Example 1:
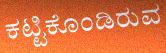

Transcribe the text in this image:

ಕಟ್ಟಿಕೊಂಡಿರುವ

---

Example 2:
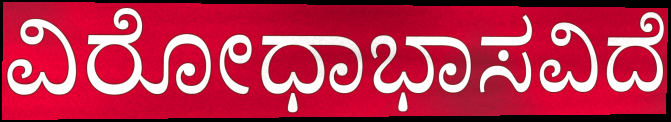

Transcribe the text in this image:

ವಿರೋಧಾಭಾಸವಿದೆ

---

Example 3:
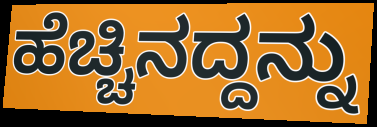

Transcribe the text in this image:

ಹೆಚ್ಚಿನದ್ದನ್ನು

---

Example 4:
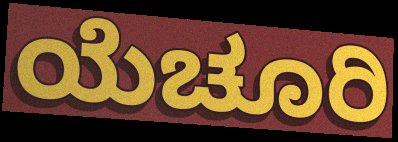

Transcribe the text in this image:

ಯೆಚೂರಿ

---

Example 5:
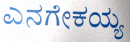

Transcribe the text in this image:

ಎನಗೇಕಯ್ಯ